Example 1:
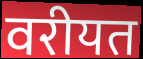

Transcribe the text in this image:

वरीयत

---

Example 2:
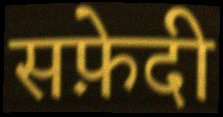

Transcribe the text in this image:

सफ़ेदी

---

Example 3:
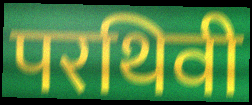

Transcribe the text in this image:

परथिवी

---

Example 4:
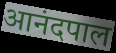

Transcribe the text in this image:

आनंदपाल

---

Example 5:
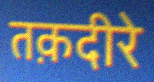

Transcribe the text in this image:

तक़दीरे